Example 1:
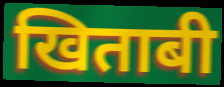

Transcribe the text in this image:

खिताबी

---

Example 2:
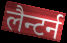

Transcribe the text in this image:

लैन्टर्न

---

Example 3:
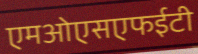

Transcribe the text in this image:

एमओएसएफईटी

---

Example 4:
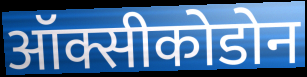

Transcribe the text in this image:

ऑक्सीकोडोन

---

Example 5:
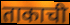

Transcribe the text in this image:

ताकाची